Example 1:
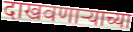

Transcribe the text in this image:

दाखवणाऱ्याच्या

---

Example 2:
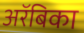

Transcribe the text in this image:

अरॅबिका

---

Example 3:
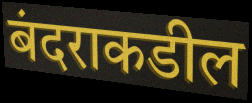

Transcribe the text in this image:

बंदराकडील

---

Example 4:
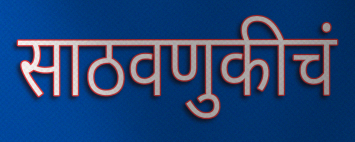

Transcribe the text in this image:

साठवणुकीचं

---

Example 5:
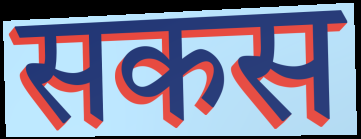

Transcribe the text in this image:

सकस